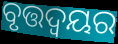
ବୃତ୍ତଦ୍ଵୟର